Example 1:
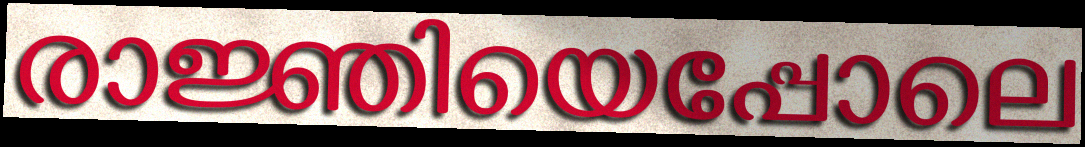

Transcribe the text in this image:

രാജ്ഞിയെപ്പോലെ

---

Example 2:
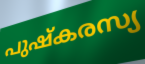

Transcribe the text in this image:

പുഷ്കരസ്യ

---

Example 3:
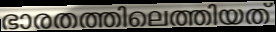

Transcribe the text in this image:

ഭാരതത്തിലെത്തിയത്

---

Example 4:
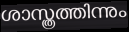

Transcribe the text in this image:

ശാസ്ത്രത്തിന്നും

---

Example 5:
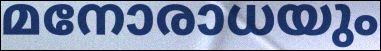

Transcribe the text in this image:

മനോരാധയും